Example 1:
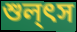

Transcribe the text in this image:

শুল্ৎস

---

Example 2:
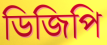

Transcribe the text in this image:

ডিজিপি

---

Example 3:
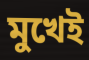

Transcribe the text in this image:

মুখেই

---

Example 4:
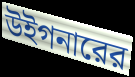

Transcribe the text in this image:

উইগনারের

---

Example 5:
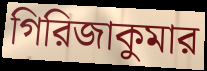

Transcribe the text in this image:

গিরিজাকুমার